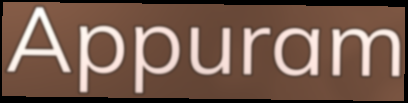
Appuram